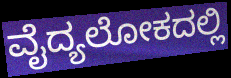
ವೈದ್ಯಲೋಕದಲ್ಲಿ